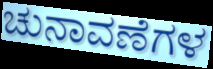
ಚುನಾವಣೆಗಳ